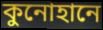
কুনোহানে